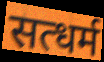
सत्धर्म